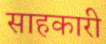
साहकारी